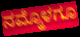
ನಮ್ಮೊಳಗೂ